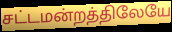
சட்டமன்றத்திலேயே